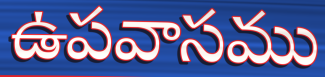
ఉపవాసము